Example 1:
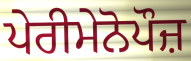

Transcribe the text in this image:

ਪੇਰੀਮੇਨੋਪੌਜ਼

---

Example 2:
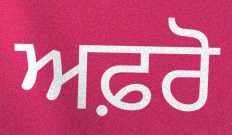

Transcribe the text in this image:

ਅਫ਼ਰੋ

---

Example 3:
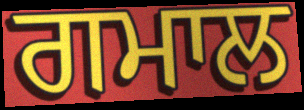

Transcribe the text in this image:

ਗਮਾਲ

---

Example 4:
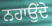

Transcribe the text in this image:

ਨਹਾਉਂਦੇ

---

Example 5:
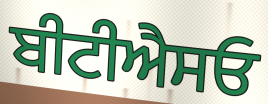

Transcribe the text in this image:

ਬੀਟੀਐਸਓ